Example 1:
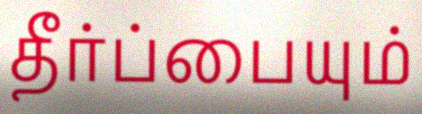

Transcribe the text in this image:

தீர்ப்பையும்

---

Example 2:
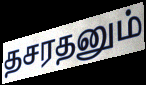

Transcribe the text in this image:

தசரதனும்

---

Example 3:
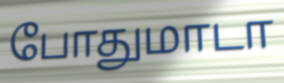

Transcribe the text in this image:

போதுமாடா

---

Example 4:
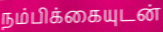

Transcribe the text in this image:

நம்பிக்கையுடன்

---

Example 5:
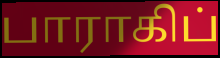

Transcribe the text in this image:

பாராகிப்